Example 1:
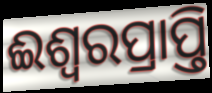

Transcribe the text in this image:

ଈଶ୍ଵରପ୍ରାପ୍ତି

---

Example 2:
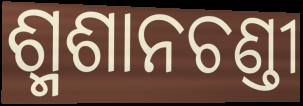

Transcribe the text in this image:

ଶ୍ମଶାନଚଣ୍ଡୀ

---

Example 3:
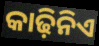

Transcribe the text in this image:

କାଢ଼ିନିଏ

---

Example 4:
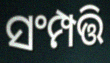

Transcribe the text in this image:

ସଂମ୍ପତ୍ତି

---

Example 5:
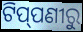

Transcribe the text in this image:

ଟିପ୍‌ପଣୀରୁ